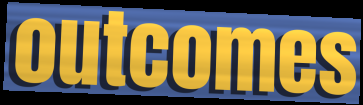
outcomes